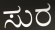
ಸುರ